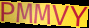
PMMVY